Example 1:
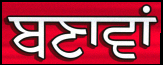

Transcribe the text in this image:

ਬਣਾਵਾਂ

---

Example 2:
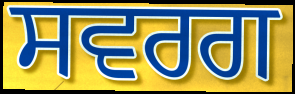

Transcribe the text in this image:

ਸਵਰਗ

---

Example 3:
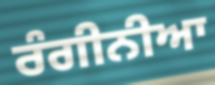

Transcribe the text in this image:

ਰੰਗੀਨੀਆ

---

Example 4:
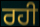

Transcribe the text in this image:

ਰਹੀ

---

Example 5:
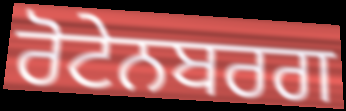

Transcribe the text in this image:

ਰੋਟੇਨਬਰਗ